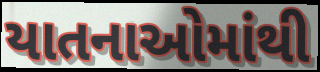
યાતનાઓમાંથી